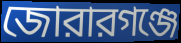
জোরারগঞ্জে